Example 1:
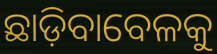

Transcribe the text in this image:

ଛାଡ଼ିବାବେଳକୁ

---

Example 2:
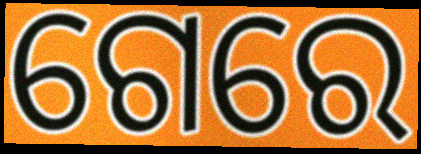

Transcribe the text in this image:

ଗେରେ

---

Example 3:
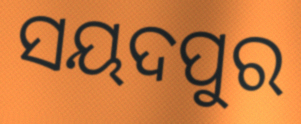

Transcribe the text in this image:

ସୟଦପୁର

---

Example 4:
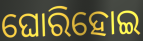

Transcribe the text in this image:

ଘୋରିହୋଇ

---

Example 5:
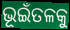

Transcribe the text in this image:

ଭୂଇଁତଳକୁ